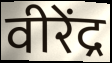
वीरेंद्र